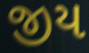
જીય